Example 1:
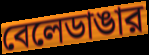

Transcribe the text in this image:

বেলেডাঙার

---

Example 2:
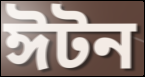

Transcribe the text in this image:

ঈটন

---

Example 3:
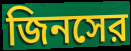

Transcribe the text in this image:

জিনসের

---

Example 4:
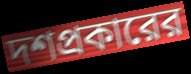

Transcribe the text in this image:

দশপ্রকারের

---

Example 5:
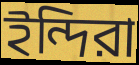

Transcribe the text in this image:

ইন্দিরা